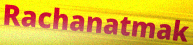
Rachanatmak